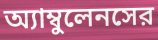
অ্যাম্বুলেনসের